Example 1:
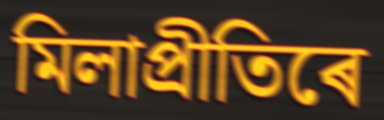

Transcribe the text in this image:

মিলাপ্ৰীতিৰে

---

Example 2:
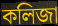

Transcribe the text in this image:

কলিজা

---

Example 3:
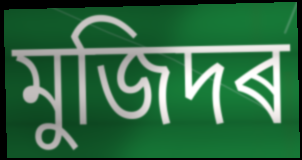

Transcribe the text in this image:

মুজিদৰ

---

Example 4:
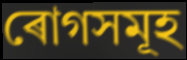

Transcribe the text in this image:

ৰোগসমূহ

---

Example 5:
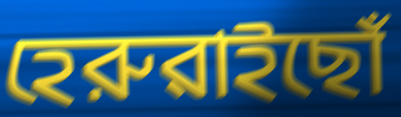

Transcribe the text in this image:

হেৰুৱাইছোঁ